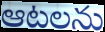
ఆటలను